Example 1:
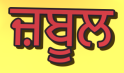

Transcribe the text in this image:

ਜ਼ਬੂਲ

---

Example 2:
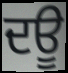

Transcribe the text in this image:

ਦਊ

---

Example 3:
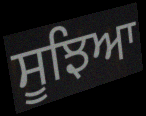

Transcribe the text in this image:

ਸੂਝਿਆ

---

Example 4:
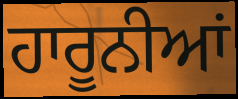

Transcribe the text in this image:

ਹਾਰੂਨੀਆਂ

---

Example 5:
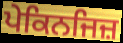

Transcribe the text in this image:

ਪੇਕਿਨਜਿਜ਼